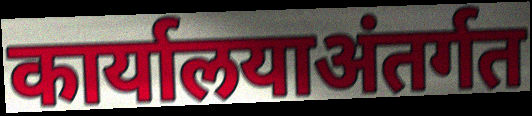
कार्यालयाअंतर्गत